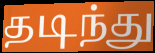
தடிந்து